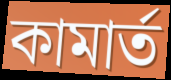
কামার্ত